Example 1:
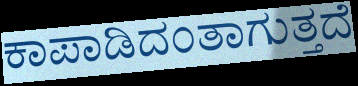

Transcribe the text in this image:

ಕಾಪಾಡಿದಂತಾಗುತ್ತದೆ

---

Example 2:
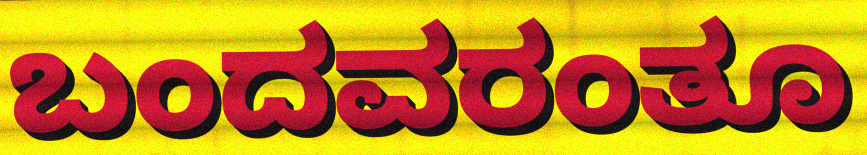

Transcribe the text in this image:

ಬಂದವರಂತೂ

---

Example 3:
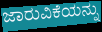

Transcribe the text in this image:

ಜಾರುವಿಕೆಯನ್ನು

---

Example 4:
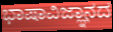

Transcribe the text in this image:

ಭಾಷಾವಿಜ್ಞಾನದ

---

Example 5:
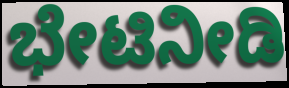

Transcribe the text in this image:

ಭೇಟಿನೀಡಿ